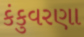
કંકુવરણા